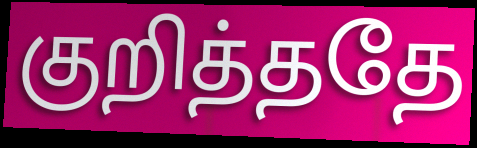
குறித்ததே